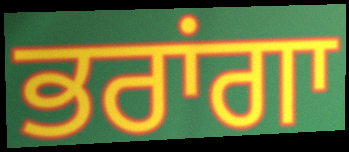
ਭਰਾਂਗਾ